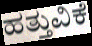
ಹತ್ತುವಿಕೆ